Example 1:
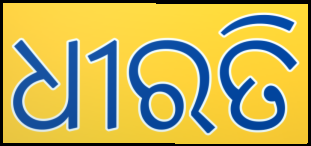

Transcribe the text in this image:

ଧୀରତି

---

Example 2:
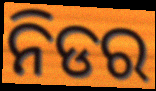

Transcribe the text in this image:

ନିଡର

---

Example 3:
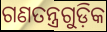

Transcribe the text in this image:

ଗଣତନ୍ତ୍ରଗୁଡ଼ିକ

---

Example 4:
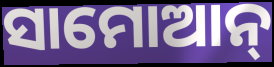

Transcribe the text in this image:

ସାମୋଆନ୍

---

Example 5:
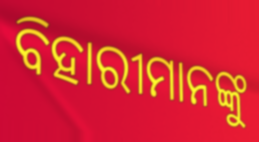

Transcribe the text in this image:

ବିହାରୀମାନଙ୍କୁ